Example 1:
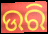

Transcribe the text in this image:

ଉରି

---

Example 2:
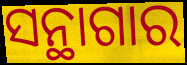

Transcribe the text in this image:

ସନ୍ଥାଗାର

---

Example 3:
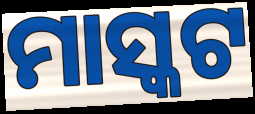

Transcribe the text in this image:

ମାସ୍କଟ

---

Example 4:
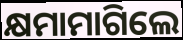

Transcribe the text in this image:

କ୍ଷମାମାଗିଲେ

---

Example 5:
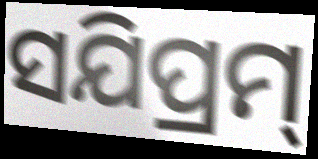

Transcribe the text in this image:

ସଯିପ୍ରମ୍